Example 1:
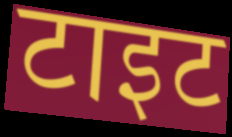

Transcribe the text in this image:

टाइट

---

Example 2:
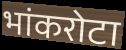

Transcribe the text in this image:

भांकरोटा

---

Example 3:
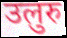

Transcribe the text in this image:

उलुरु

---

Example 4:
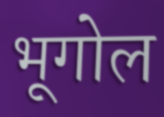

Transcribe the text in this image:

भूगोल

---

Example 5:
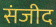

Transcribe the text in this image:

संजीद